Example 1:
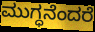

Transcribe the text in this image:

ಮುಗ್ಧನೆಂದರೆ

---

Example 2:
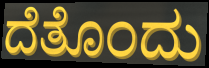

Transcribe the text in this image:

ದೆತೊಂದು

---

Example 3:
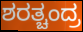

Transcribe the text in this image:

ಶರತ್ಚಂದ್ರ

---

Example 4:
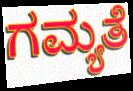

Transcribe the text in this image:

ಗಮ್ಯತೆ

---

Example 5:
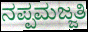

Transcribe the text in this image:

ನಪ್ಪಮಜ್ಜತಿ